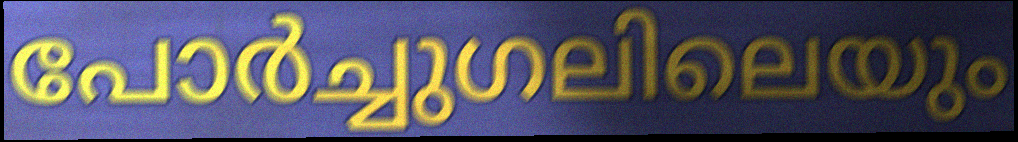
പോർച്ചുഗലിലെയും